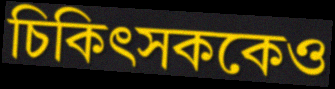
চিকিৎসককেও